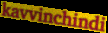
kavvinchindi